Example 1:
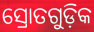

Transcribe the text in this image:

ସ୍ରୋତଗୁଡ଼ିକ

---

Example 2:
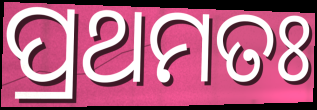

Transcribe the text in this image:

ପ୍ରଥମତଃ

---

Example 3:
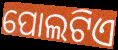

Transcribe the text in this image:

ପୋଲଟିଏ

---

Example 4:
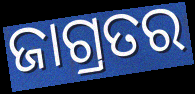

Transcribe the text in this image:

ଜାଗ୍ରତର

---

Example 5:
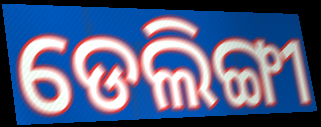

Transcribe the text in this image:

ଡେଲିଙ୍ଗୀ